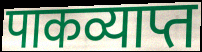
पाकव्याप्त